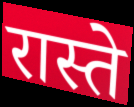
रास्ते